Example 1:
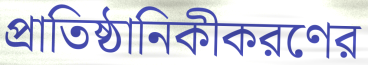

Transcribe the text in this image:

প্রাতিষ্ঠানিকীকরণের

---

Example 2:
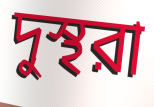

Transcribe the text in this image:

দুস্থরা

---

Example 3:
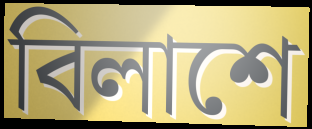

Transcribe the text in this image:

বিলাশে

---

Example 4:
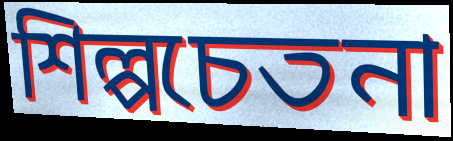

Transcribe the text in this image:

শিল্পচেতনা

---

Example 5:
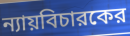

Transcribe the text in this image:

ন্যায়বিচারকের